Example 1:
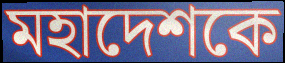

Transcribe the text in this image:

মহাদেশকে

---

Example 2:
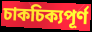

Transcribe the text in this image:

চাকচিক্যপূর্ণ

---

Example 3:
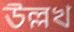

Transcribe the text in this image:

উল্লখ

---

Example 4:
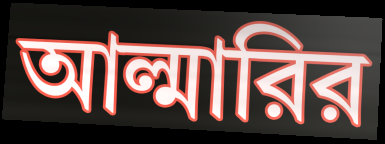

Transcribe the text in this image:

আল্মারির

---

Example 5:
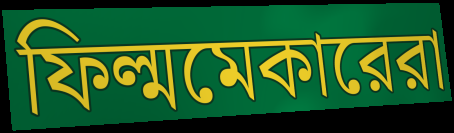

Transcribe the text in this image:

ফিল্মমেকারেরা